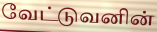
வேட்டுவனின்